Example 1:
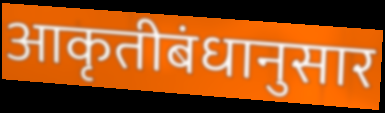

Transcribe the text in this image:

आकृतीबंधानुसार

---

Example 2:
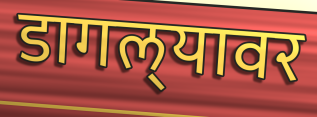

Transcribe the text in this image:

डागल्यावर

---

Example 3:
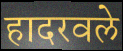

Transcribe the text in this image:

हादरवले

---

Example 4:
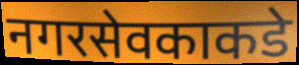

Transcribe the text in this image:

नगरसेवकाकडे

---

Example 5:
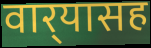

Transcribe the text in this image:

वार्‍यासह